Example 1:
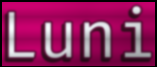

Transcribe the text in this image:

Luni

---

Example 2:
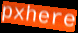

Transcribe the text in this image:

pxhere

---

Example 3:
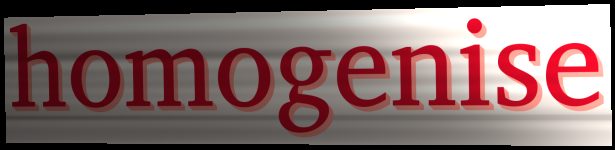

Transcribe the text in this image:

homogenise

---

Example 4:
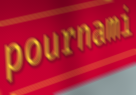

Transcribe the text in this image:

pournami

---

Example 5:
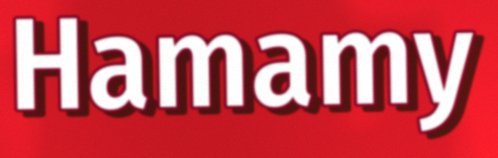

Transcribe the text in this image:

Hamamy